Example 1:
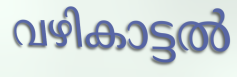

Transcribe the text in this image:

വഴികാട്ടൽ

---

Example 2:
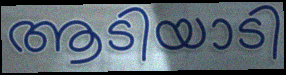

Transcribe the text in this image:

ആടിയാടി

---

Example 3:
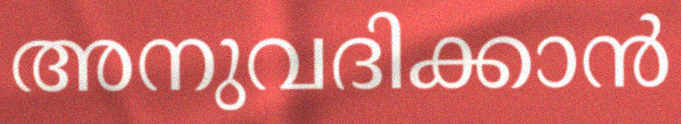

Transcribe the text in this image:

അനുവദിക്കാൻ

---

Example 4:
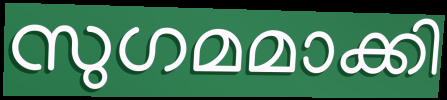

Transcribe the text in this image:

സുഗമമാക്കി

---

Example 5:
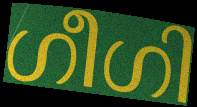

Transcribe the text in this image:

ഗീഗി